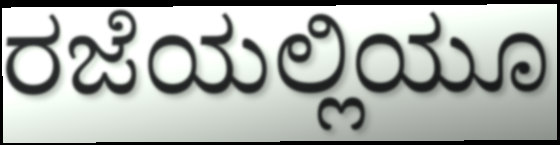
ರಜೆಯಲ್ಲಿಯೂ